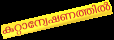
കുറ്റാന്വേഷണത്തിൽ